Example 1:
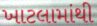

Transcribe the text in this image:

ખાટલામાંથી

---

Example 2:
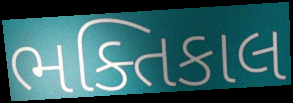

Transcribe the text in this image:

ભક્તિકાલ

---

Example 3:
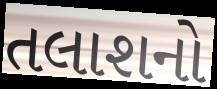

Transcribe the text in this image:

તલાશનો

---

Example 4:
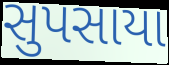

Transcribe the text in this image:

સુપસાયા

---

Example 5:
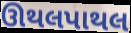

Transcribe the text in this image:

ઊથલપાથલ